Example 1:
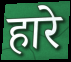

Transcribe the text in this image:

हारे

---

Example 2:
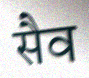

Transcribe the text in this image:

सैव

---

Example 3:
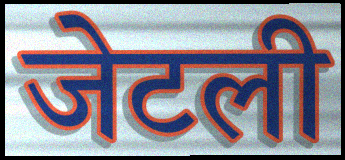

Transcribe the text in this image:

जेटली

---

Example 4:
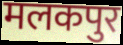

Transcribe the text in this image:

मलकपुर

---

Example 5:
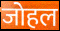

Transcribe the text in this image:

जोहल